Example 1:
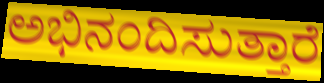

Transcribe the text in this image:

ಅಭಿನಂದಿಸುತ್ತಾರೆ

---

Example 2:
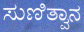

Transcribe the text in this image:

ಸುಣಿತ್ವಾನ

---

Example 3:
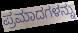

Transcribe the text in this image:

ಪ್ರಮಾದಗಳನ್ನು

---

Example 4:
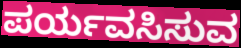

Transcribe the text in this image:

ಪರ್ಯವಸಿಸುವ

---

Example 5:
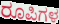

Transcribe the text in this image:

ರೂಪಿಗಳ